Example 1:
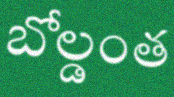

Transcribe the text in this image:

బోల్డంత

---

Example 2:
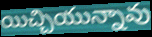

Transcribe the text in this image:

యిచ్చియున్నావు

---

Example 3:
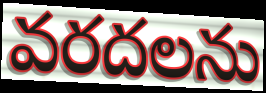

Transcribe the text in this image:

వరదలను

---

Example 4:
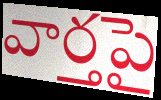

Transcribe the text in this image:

వార్తపై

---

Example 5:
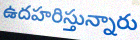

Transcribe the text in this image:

ఉదహరిస్తున్నారు